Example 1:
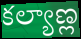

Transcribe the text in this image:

కల్యాణ్ల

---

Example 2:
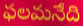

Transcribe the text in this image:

ఫలమనేది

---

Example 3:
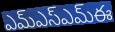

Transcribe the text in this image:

ఎమ్ఎస్ఎమ్ఈ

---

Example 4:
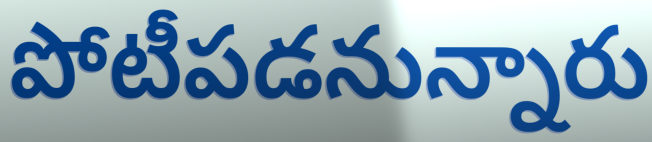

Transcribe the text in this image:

పోటీపడనున్నారు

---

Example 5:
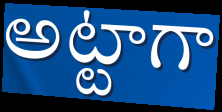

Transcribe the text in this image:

అట్టాగా